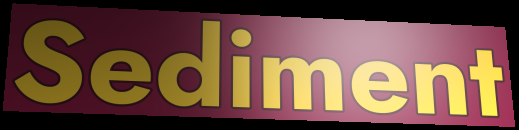
Sediment